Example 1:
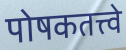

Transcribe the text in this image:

पोषकतत्त्वे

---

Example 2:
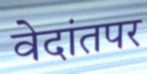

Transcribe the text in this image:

वेदांतपर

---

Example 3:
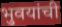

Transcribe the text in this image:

भुवयांची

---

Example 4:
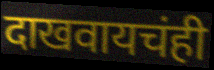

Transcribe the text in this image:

दाखवायचंही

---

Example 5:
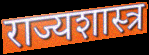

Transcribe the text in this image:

राज्यशास्त्र